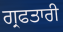
ਗ੍ਰਫਤਾਰੀ